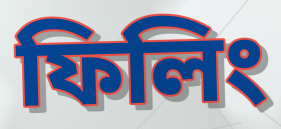
ফিলিং